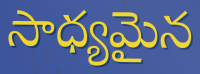
సాధ్యమైన